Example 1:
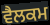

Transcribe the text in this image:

ਵੈਲਕਮ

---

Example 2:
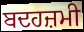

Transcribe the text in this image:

ਬਦਹਜ਼ਮੀ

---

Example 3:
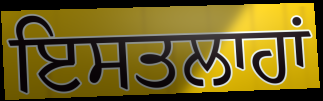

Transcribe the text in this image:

ਇਸਤਲਾਹਾਂ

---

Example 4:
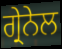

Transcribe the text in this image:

ਗ੍ਰੇਨੇਲ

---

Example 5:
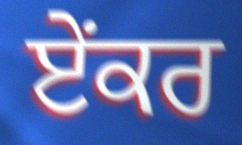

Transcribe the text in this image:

ਏੰਕਰ